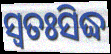
ସ୍ବତଃସିଦ୍ଧ